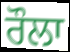
ਰੌਲਾ